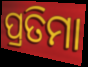
ପ୍ରତିମା